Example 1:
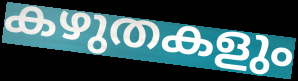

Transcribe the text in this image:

കഴുതകളും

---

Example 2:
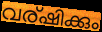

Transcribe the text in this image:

വര്ഷിക്കും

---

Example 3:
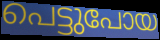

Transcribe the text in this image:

പെട്ടുപോയ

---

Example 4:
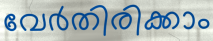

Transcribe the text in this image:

വേർതിരിക്കാം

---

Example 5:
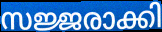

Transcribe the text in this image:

സജ്ജരാക്കി